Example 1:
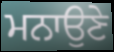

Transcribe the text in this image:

ਮਨਾਉਣੇ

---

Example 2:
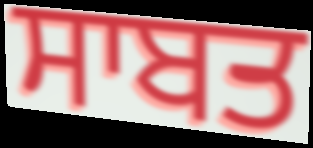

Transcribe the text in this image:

ਸਾਬਤ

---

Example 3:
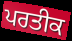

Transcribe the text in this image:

ਪਰਤੀਕ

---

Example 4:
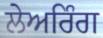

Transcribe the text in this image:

ਲੇਅਰਿੰਗ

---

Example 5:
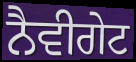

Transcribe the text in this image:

ਨੈਵੀਗੇਟ